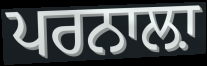
ਪਰਨਾਲ਼ਾ